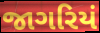
જાગરિયં